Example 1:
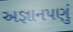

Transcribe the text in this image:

અજ્ઞાનપણું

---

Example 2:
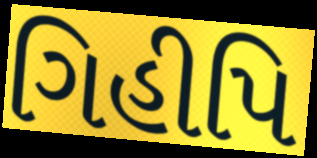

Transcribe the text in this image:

ગિહીપિ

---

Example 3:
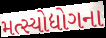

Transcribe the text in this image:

મત્સ્યોદ્યોગના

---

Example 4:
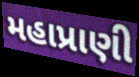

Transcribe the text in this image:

મહાપ્રાણી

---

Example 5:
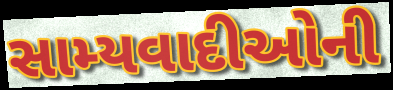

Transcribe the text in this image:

સામ્યવાદીઓની